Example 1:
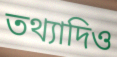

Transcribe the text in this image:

তথ্যাদিও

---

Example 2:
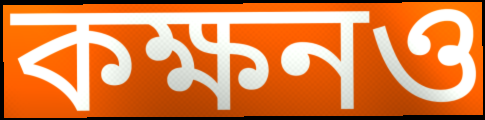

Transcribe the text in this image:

কক্ষনও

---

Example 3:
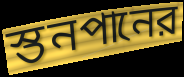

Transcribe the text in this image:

স্তনপানের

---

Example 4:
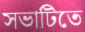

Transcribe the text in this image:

সভাটিতে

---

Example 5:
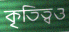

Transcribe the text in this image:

কৃতিত্বও